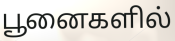
பூனைகளில்